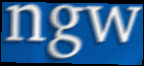
ngw